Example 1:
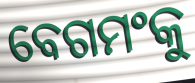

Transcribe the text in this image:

ବେଗମଂକୁ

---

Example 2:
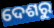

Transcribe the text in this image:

ଦେଶରୁ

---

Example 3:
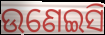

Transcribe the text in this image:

ଉଣେଇସି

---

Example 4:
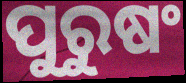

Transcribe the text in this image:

ପୁରୁଷଂ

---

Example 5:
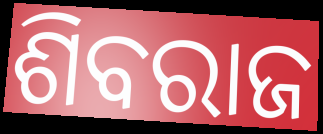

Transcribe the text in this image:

ଶିବରାଜ